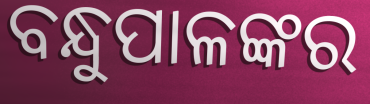
ବନ୍ଧୁପାଳଙ୍କର